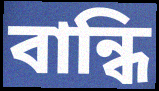
বান্ধি